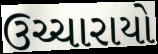
ઉચ્ચારાયો